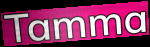
Tamma